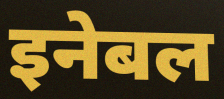
इनेबल